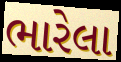
ભારેલા